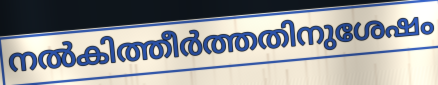
നൽകിത്തീർത്തതിനുശേഷം